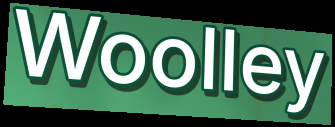
Woolley